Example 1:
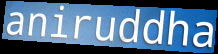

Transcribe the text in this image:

aniruddha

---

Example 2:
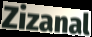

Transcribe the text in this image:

Zizanal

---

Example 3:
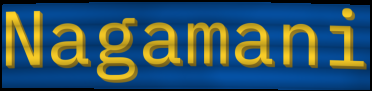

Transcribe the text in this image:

Nagamani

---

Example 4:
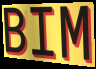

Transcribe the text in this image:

BIM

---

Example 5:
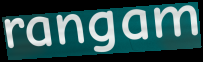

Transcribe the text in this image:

rangam